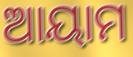
ଆୟାମ